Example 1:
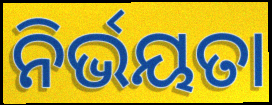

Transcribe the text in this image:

ନିର୍ଭୟତା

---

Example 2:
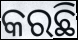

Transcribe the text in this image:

କରଛି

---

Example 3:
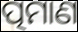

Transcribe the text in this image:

ତ୍ପମାଣ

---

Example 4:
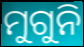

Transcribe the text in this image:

ମୁଗୁନି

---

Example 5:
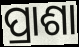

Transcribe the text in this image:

ପ୍ରାଶା